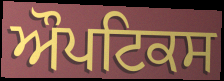
ਔਪਟਿਕਸ